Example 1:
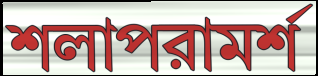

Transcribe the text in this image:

শলাপরামর্শ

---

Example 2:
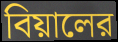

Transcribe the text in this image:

বিয়ালের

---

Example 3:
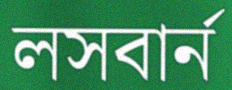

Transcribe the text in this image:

লসবার্ন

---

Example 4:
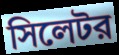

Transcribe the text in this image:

সিলেটর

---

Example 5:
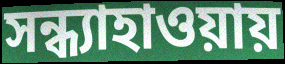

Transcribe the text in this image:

সন্ধ্যাহাওয়ায়